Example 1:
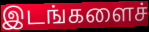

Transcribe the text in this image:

இடங்களைச்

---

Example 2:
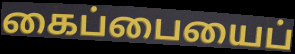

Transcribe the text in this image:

கைப்பையைப்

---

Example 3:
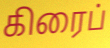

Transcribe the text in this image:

கிரைப்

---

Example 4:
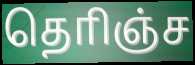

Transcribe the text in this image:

தெரிஞ்ச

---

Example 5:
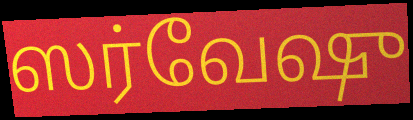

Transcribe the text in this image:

ஸர்வேஷு